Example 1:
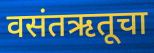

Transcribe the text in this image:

वसंतऋतूचा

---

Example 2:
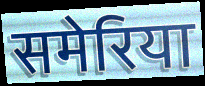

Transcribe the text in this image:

समेरिया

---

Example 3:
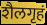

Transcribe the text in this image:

शैलगृहं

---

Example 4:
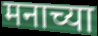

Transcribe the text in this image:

मनाच्‍या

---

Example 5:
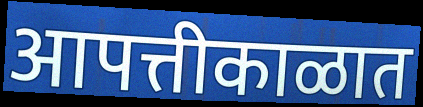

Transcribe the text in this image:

आपत्तीकाळात